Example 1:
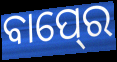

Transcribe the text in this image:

ବାପ୍‍ରେ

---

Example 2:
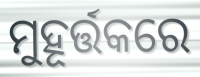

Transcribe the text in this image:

ମୁହୂର୍ତ୍ତକରେ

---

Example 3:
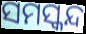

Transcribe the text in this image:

ସମସ୍କନ୍ଦ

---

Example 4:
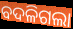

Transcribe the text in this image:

ବଦଳିଗଲା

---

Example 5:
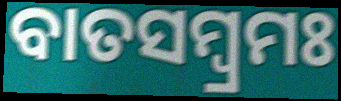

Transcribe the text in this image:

ବାତସମ୍ବ୍ରମଃ